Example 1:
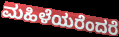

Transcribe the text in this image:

ಮಹಿಳೆಯರೆಂದರೆ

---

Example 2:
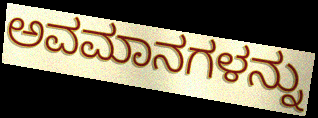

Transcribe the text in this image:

ಅವಮಾನಗಳನ್ನು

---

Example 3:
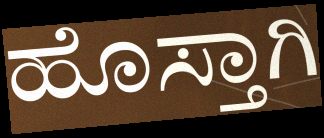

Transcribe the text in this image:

ಹೊಸ್ತಾಗಿ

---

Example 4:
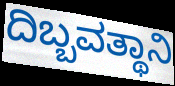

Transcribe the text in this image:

ದಿಬ್ಬವತ್ಥಾನಿ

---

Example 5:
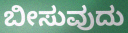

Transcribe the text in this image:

ಬೀಸುವುದು